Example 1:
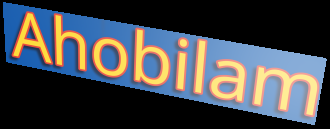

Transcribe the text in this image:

Ahobilam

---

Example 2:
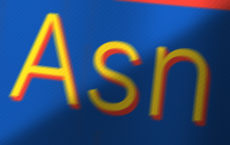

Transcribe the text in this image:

Asn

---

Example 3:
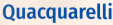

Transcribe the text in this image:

Quacquarelli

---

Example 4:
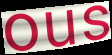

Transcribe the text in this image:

ous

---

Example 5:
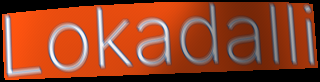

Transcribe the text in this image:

Lokadalli